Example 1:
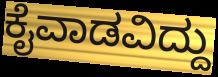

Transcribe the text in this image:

ಕೈವಾಡವಿದ್ದು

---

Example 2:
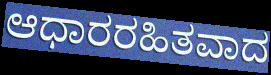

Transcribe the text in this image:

ಆಧಾರರಹಿತವಾದ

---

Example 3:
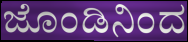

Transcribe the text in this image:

ಜೊಂಡಿನಿಂದ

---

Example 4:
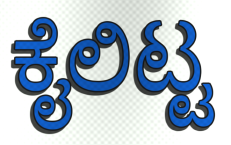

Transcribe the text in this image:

ಕೈಲಿಟ್ಟ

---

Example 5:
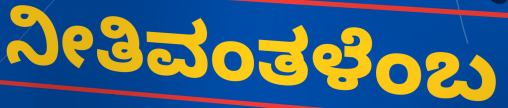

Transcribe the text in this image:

ನೀತಿವಂತಳೆಂಬ